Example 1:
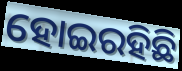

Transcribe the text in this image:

ହୋଇରହିଛି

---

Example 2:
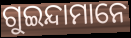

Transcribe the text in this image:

ଗୁଇନ୍ଦାମାନେ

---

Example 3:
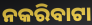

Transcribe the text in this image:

ନକରିବାଟା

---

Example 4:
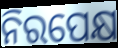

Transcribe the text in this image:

ନିରପେକ୍ଷ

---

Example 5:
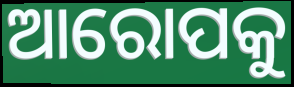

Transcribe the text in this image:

ଆରୋପକୁ